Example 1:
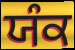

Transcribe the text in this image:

ਯੰਕ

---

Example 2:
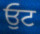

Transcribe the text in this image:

ਓੁਟ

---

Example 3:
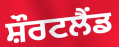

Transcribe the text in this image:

ਸ਼ੌਰਟਲੈਂਡ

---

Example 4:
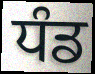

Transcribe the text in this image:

ਧੰਡ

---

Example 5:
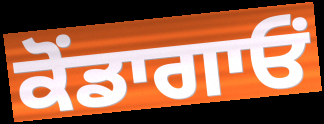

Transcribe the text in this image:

ਕੋਂਡਾਗਾਓਂ